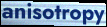
anisotropy